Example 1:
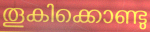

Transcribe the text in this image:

തൂകിക്കൊണ്ടു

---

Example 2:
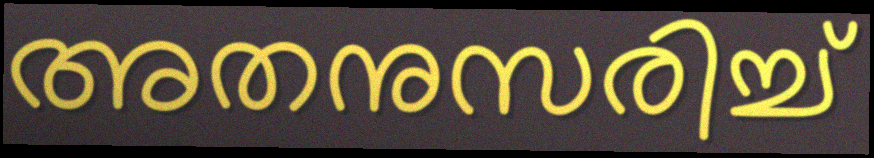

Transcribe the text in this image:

അതനുസരിച്ച്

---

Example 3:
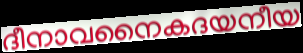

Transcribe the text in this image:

ദീനാവനൈകദയനീയ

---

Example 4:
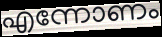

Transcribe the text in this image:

എന്നോണം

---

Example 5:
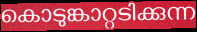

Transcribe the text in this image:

കൊടുങ്കാറ്റടിക്കുന്ന